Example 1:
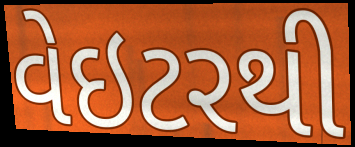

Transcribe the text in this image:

વેઇટરથી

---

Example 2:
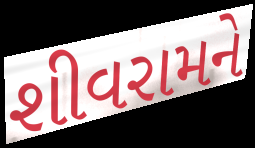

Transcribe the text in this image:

શીવરામને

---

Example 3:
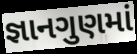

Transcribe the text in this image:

જ્ઞાનગુણમાં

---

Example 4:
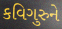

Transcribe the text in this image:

કવિગુરુને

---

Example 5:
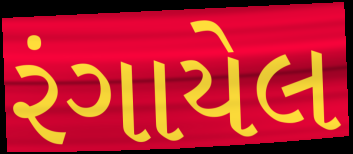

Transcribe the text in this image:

રંગાયેલ